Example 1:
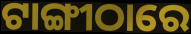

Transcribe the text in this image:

ଟାଙ୍ଗୀଠାରେ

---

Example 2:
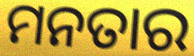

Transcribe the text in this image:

ମନତାର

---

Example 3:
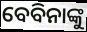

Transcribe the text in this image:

ବେବିନାଙ୍କୁ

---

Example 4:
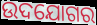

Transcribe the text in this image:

ଉଦଯୋଗର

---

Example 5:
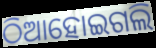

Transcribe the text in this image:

ଠିଆହୋଇଗଲି